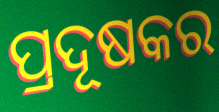
ପ୍ରଦୂଷକର